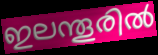
ഇലന്തൂരിൽ